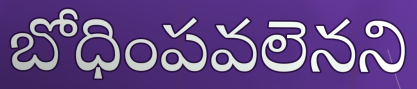
బోధింపవలెనని